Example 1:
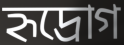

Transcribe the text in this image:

হৃদ্রোগ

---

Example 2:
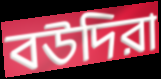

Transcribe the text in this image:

বউদিরা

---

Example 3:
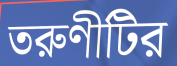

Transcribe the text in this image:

তরুণীটির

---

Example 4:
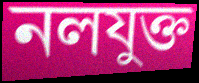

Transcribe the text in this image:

নলযুক্ত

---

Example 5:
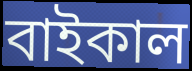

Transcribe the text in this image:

বাইকাল